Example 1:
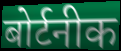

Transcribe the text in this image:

बोर्टनीक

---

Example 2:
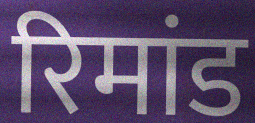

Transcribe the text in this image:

रिमांड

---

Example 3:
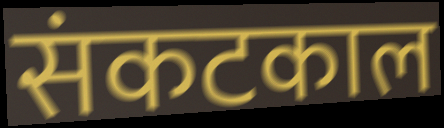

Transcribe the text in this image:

संकटकाल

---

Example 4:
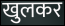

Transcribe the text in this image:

खुलकर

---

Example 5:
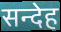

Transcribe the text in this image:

सन्देह